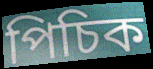
পিচিক